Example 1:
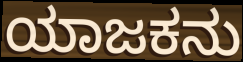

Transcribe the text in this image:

ಯಾಜಕನು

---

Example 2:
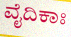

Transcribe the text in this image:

ವೈದಿಕಾಃ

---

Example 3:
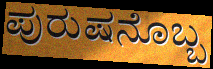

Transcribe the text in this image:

ಪುರುಷನೊಬ್ಬ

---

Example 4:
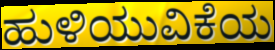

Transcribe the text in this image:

ಹುಳಿಯುವಿಕೆಯ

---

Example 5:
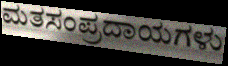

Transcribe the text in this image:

ಮತಸಂಪ್ರದಾಯಗಳು